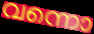
വന്നൊ